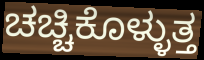
ಚಚ್ಚಿಕೊಳ್ಳುತ್ತ